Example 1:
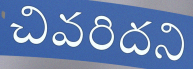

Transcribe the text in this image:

చివరిదని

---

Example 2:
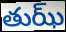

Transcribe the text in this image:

తుఝ్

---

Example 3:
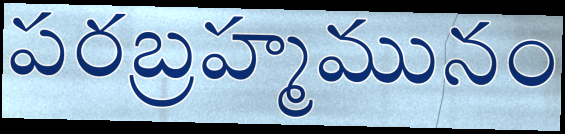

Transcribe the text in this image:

పరబ్రహ్మమునం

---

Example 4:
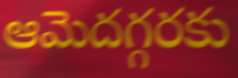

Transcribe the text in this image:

ఆమెదగ్గరకు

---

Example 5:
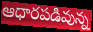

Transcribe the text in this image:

ఆధారపడివున్న